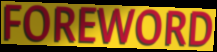
FOREWORD